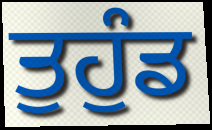
ਤੁਹੁੰਡ